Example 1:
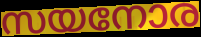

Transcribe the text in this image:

സയനോര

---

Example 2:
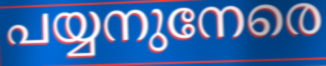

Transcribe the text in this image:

പയ്യനുനേരെ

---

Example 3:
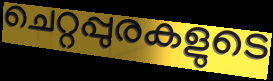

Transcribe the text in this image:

ചെറ്റപ്പുരകളുടെ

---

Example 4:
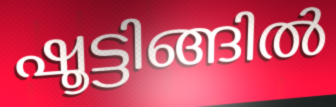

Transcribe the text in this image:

ഷൂട്ടിങ്ങിൽ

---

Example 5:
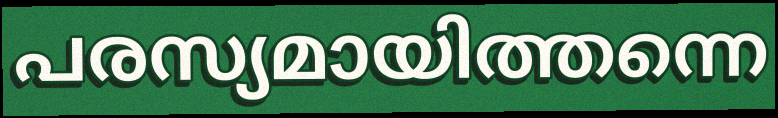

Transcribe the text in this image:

പരസ്യമായിത്തന്നെ